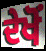
ਦੇਖੋਂ